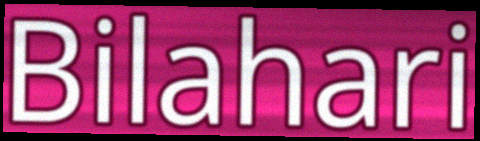
Bilahari